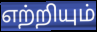
எற்றியும்